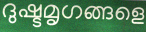
ദുഷ്ടമൃഗങ്ങളെ